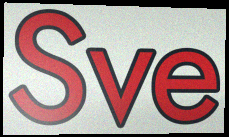
Sve